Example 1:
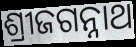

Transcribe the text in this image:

ଶ୍ରୀଜଗନ୍ନାଥ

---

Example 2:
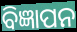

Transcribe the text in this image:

ବିଜ୍ଞାପନ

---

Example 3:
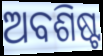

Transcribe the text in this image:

ଅବଶିଷ୍ଟ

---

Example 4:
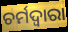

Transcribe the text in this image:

ଚର୍ମଦ୍ଵାରା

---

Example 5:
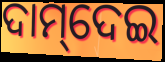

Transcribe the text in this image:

ଦାମ୍‌ଦେଇ